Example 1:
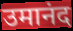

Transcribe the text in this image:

उमानंद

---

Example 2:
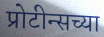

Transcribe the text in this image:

प्रोटीन्सच्या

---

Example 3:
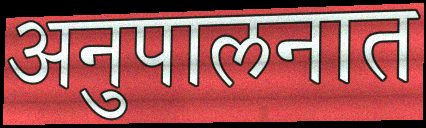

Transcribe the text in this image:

अनुपालनात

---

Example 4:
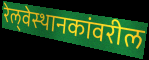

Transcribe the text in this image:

रेल्वेस्थानकांवरील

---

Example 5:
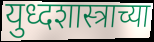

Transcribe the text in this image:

युध्दशास्त्राच्या